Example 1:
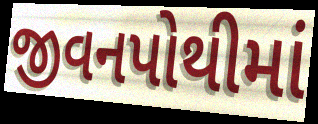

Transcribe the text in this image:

જીવનપોથીમાં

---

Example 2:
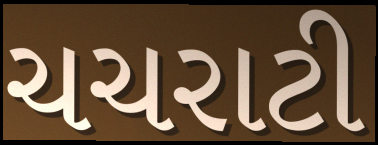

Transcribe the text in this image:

ચચરાટી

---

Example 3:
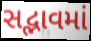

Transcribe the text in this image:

સદ્ભાવમાં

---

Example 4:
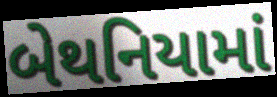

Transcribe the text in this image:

બેથનિયામાં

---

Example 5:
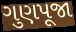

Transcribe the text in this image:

ગુણપૂજા